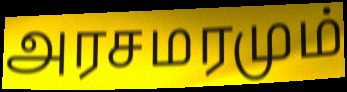
அரசமரமும்